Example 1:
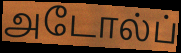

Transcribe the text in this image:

அடோல்ப்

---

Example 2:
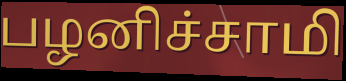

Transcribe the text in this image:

பழனிச்சாமி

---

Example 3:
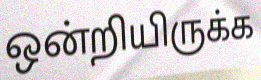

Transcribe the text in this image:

ஒன்றியிருக்க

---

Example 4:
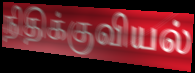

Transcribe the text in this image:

நிதிக்குவியல்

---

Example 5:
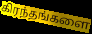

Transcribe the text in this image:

கிரந்தங்களை